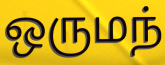
ஒருமந்